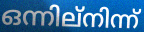
ഒന്നില്നിന്ന്